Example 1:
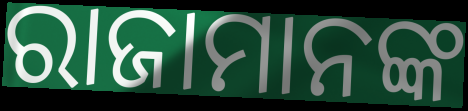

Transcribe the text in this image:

ରାଜାମାନଙ୍କ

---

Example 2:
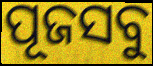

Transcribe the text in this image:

ପୂଜସବୁ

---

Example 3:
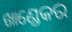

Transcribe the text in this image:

ଖାଣ୍ଡେକର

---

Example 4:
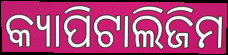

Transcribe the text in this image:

କ୍ୟାପିଟାଲିଜିମ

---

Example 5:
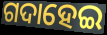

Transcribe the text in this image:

ଗଦାହେଇ